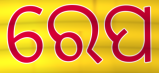
ରେପ